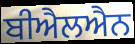
ਬੀਐਲਐਨ